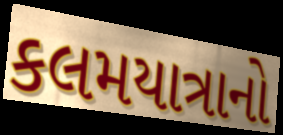
કલમયાત્રાનો